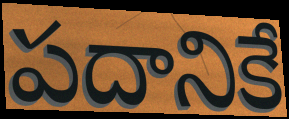
పదానికే